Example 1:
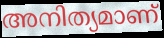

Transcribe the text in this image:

അനിത്യമാണ്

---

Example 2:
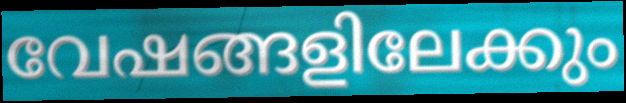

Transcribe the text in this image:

വേഷങ്ങളിലേക്കും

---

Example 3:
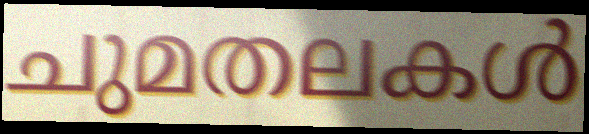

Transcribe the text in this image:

ചുമതലകൾ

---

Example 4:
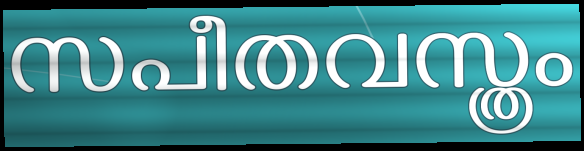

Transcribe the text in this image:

സപീതവസ്ത്രം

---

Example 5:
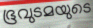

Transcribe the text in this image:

ഭൂവുടമയുടെ